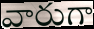
వారుగా